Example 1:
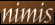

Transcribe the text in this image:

nimis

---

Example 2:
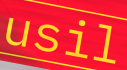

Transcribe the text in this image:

usil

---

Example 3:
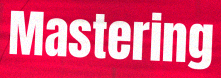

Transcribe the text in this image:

Mastering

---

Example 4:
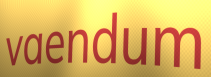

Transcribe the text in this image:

vaendum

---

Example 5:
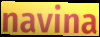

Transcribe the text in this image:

navina